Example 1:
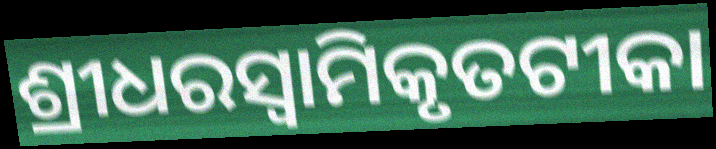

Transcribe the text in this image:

ଶ୍ରୀଧରସ୍ଵାମିକୃତଟୀକା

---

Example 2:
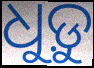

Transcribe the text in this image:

ଧୁଡ଼ୁ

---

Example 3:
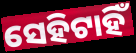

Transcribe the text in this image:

ସେହିଟାହିଁ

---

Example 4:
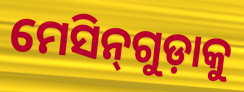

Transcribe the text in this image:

ମେସିନ୍‌ଗୁଡ଼ାକୁ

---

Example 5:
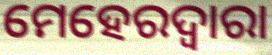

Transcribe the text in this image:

ମେହେରଦ୍ୱାରା